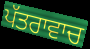
ਪੱਤਰਾਵਾਚ